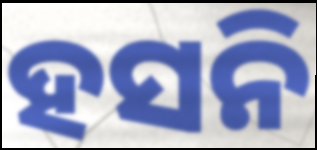
ହସନି